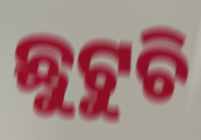
ଛୁଟୁଚି